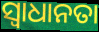
ସ୍ୱାଧାନତା